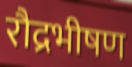
रौद्रभीषण